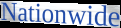
Nationwide